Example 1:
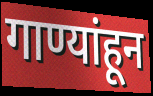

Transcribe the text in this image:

गाण्यांहून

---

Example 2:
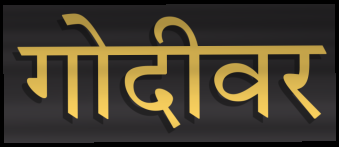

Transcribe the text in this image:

गोदीवर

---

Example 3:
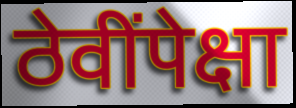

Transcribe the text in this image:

ठेवींपेक्षा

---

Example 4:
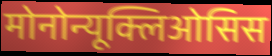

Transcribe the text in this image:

मोनोन्यूक्लिओसिस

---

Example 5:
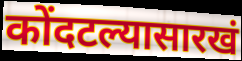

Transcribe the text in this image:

कोंदटल्यासारखं